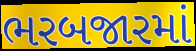
ભરબજારમાં